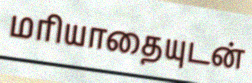
மரியாதையுடன்